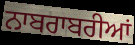
ਨਾਬਰਾਬਰੀਆਂ